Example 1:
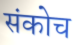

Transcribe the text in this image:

संकोच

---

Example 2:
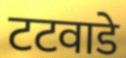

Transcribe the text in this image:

टटवाडे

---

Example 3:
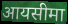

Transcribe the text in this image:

आयसीमा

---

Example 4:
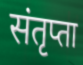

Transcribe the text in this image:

संतृप्ता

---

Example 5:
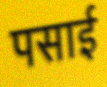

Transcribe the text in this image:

पसाई